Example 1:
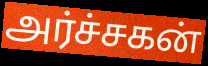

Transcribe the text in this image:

அர்ச்சகன்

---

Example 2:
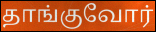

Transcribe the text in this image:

தாங்குவோர்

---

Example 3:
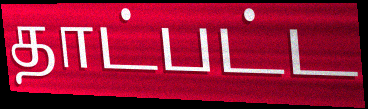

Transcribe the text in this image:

தாட்பட்ட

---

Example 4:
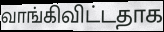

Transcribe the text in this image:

வாங்கிவிட்டதாக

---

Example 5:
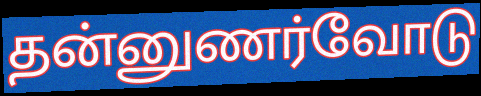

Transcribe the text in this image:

தன்னுணர்வோடு